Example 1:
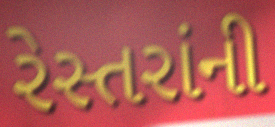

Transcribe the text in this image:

રેસ્તરાંની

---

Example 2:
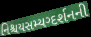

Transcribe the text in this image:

નિશ્ચયસમ્યગ્દર્શનની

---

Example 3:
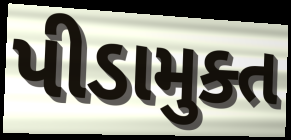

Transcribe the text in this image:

પીડામુક્ત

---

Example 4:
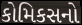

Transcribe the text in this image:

કોમિકસનો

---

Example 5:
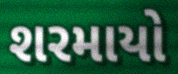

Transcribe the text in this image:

શરમાયો